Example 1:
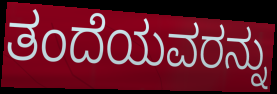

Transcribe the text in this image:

ತಂದೆಯವರನ್ನು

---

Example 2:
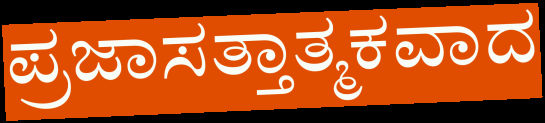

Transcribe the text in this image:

ಪ್ರಜಾಸತ್ತಾತ್ಮಕವಾದ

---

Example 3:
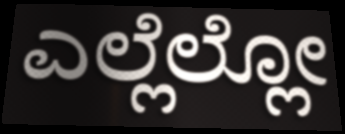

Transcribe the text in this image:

ಎಲ್ಲೆಲ್ಲೋ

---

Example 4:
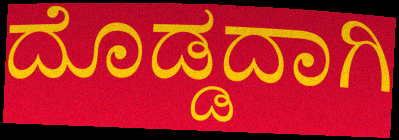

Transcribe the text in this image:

ದೊಡ್ಡದಾಗಿ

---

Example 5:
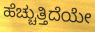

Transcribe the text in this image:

ಹೆಚ್ಚುತ್ತಿದೆಯೇ